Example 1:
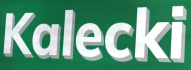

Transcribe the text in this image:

Kalecki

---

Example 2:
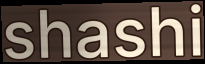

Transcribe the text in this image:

shashi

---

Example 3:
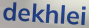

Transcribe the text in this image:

dekhlei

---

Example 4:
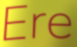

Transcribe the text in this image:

Ere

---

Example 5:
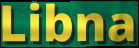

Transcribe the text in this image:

Libna